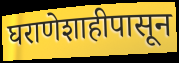
घराणेशाहीपासून